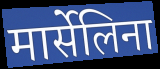
मार्सेलिना